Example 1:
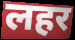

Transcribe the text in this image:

लहर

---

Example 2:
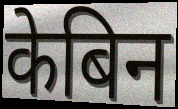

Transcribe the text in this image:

केबिन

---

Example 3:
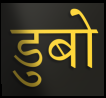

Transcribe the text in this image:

डुबो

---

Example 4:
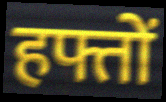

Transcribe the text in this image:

हफ्तों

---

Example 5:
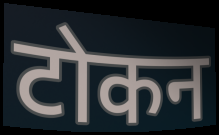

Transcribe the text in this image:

टोकन